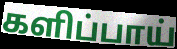
களிப்பாய்